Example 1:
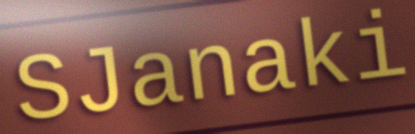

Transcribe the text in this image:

SJanaki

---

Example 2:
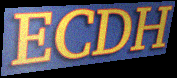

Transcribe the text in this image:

ECDH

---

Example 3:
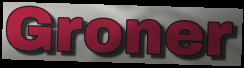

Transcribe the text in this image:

Groner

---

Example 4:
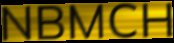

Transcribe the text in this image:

NBMCH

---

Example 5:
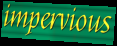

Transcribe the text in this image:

impervious